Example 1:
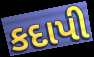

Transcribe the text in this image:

કદાપી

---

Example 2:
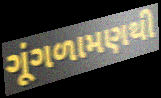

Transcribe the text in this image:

ગૂંગળામણથી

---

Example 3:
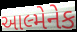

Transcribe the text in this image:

આલ્મેનેક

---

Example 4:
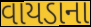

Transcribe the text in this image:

વાયડાના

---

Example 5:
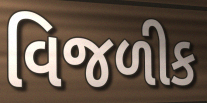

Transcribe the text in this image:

વિજળીક